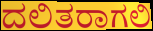
ದಲಿತರಾಗಲಿ